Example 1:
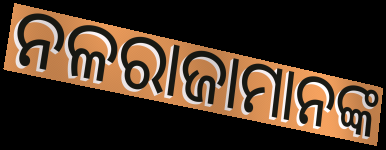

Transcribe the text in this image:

ନଳରାଜାମାନଙ୍କ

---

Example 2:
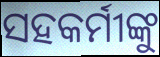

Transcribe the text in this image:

ସହକର୍ମୀଙ୍କୁ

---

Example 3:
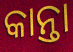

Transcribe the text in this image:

କାନ୍ତା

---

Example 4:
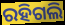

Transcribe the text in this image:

ରହିଗଲି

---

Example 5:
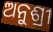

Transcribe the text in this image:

ଅନୁଶ୍ରୀ